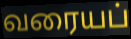
வரையப்